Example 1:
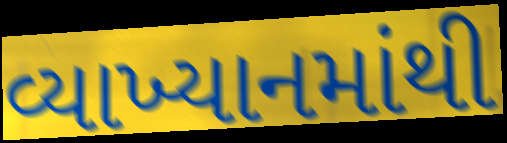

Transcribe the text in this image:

વ્યાખ્યાનમાંથી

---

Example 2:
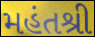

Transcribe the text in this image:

મહંતશ્રી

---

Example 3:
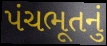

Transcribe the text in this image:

પંચભૂતનું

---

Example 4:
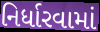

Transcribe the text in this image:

નિર્ધારવામાં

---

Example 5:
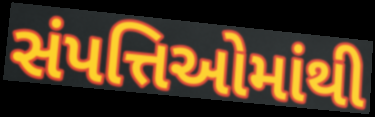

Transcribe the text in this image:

સંપત્તિઓમાંથી